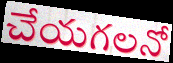
చేయగలనో